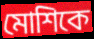
মোশিকে